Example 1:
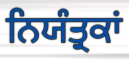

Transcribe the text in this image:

ਨਿਯੰਤ੍ਰਕਾਂ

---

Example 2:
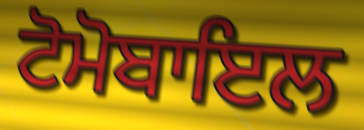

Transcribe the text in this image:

ਟੋਮੋਬਾਇਲ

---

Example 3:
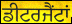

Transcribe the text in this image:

ਡੀਟਰਜੈਂਟਾਂ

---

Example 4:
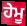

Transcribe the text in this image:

ਹੇਮੂ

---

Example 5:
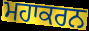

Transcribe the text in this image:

ਮਹਾਕਰਨ